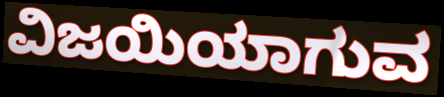
ವಿಜಯಿಯಾಗುವ